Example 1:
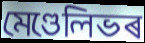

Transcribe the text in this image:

মেণ্ডেলিভৰ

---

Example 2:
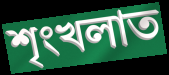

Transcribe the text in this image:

শৃংখলাত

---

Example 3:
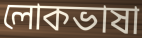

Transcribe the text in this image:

লোকভাষা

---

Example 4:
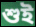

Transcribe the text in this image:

শুই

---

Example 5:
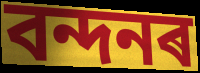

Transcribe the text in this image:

বন্দনৰ